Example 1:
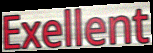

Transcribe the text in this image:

Exellent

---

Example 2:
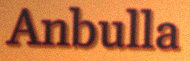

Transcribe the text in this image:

Anbulla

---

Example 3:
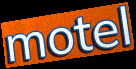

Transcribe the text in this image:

motel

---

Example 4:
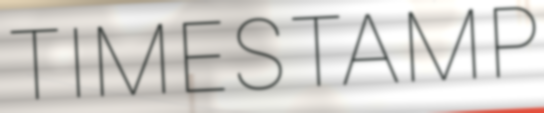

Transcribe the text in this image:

TIMESTAMP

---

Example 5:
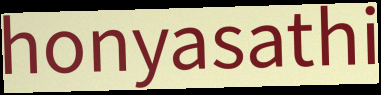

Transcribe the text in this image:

honyasathi